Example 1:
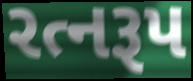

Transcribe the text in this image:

રત્નરૂપ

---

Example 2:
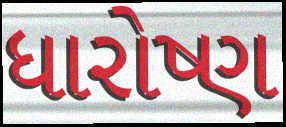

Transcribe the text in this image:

ધારોષ્ણ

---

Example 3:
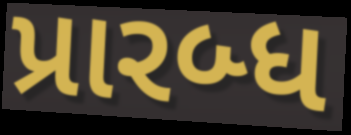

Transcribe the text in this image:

પ્રારબ્ધ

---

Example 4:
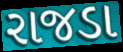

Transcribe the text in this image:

રાજડા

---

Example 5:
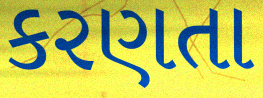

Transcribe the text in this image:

કરણતા